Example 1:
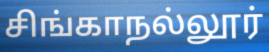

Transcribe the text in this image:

சிங்காநல்லூர்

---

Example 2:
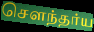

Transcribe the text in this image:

செளந்தர்ய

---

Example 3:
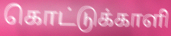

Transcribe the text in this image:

கொட்டுக்காளி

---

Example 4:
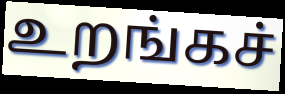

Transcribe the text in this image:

உறங்கச்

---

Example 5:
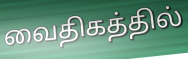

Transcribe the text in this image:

வைதிகத்தில்